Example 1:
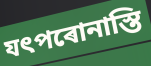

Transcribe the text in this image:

যৎপৰোনাস্তি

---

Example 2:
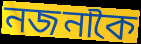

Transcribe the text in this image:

নজনাকৈ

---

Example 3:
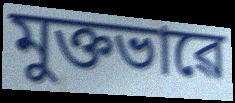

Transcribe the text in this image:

মুক্তভাৱে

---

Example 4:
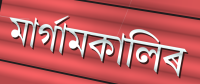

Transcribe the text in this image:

মাৰ্গামকালিৰ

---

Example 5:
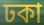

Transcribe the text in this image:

ঢকা